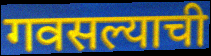
गवसल्याची